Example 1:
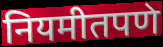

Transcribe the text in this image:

नियमीतपणे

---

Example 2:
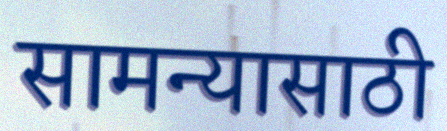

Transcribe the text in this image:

सामन्यासाठी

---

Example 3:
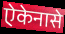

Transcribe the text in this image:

ऐकेनासे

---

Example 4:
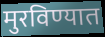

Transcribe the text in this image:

मुरविण्यात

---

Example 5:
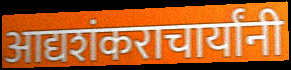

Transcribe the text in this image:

आद्यशंकराचार्यांनी